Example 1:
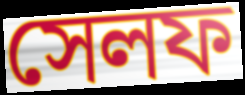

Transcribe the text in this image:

সেলফ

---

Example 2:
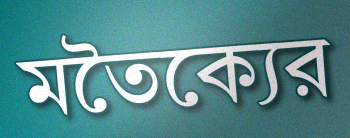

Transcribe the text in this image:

মতৈক্যের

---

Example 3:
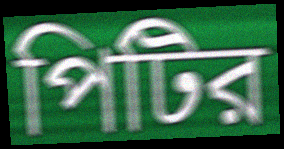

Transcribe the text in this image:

পিটির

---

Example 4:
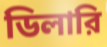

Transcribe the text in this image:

ডিলারি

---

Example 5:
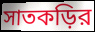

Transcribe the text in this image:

সাতকড়ির